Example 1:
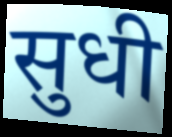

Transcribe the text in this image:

सुधी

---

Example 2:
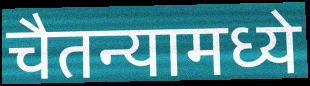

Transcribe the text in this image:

चैतन्यामध्ये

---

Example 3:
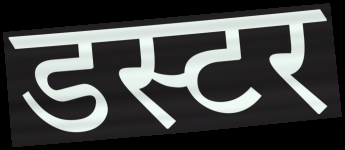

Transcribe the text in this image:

डस्टर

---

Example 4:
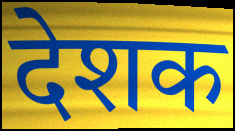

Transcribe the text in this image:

देशक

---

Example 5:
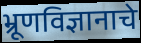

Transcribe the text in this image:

भ्रूणविज्ञानाचे